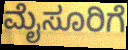
ಮೈಸೂರಿಗೆ